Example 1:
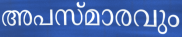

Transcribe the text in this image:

അപസ്മാരവും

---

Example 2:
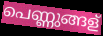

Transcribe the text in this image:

പെണ്ണുങ്ങള്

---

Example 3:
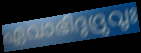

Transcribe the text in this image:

ഏവാഭിദുദ്രുവുഃ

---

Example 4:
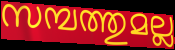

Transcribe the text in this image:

സമ്പത്തുമല്ല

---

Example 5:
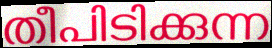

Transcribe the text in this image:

തീപിടിക്കുന്ന